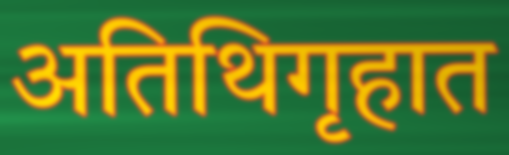
अतिथिगृहात